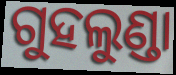
ଗୁହଲୁଣ୍ଡା